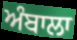
ਅੰਬਾਲਾ